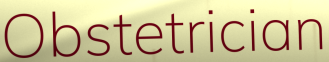
Obstetrician